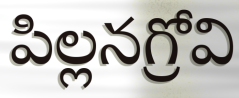
పిల్లనగ్రోవి